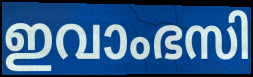
ഇവാംഭസി